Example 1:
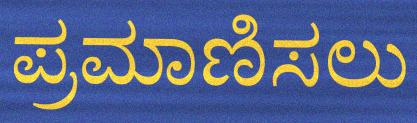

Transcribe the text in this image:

ಪ್ರಮಾಣಿಸಲು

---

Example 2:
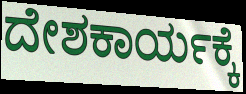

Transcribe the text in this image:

ದೇಶಕಾರ್ಯಕ್ಕೆ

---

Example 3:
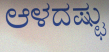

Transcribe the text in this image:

ಆಳದಷ್ಟು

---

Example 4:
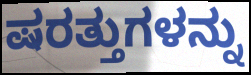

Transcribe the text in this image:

ಷರತ್ತುಗಳನ್ನು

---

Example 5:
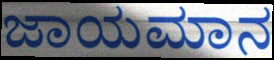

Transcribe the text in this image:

ಜಾಯಮಾನ